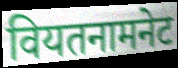
वियतनामनेट